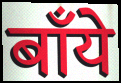
बाँये